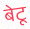
बेटू